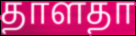
தாளதா